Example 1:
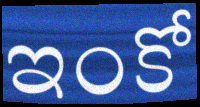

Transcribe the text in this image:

ఇంకో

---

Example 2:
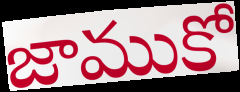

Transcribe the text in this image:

జాముకో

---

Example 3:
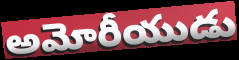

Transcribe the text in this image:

అమోరీయుడు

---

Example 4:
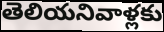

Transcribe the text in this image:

తెలియనివాళ్లకు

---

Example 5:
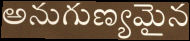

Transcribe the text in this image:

అనుగుణ్యమైన